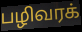
பழிவரக்